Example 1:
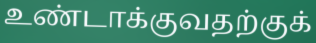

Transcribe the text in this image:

உண்டாக்குவதற்குக்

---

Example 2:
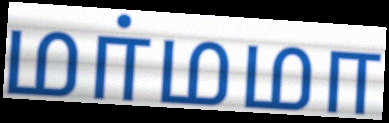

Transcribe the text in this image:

மர்மமா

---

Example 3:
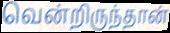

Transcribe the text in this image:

வென்றிருந்தான்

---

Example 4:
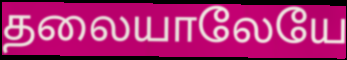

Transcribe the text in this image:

தலையாலேயே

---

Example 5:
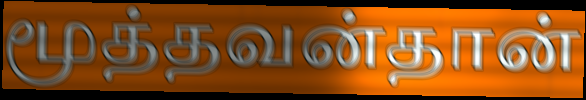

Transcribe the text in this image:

மூத்தவன்தான்